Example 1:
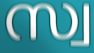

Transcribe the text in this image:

സ്വ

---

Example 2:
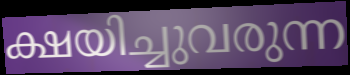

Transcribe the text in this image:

ക്ഷയിച്ചുവരുന്ന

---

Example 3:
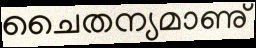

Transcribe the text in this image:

ചൈതന്യമാണു്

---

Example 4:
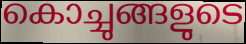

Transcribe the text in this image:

കൊച്ചുങ്ങളുടെ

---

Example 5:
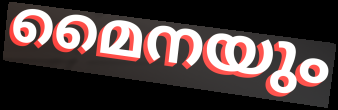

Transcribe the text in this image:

മൈനയും